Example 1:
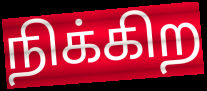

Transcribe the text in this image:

நிக்கிற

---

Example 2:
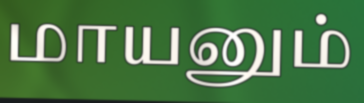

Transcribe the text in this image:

மாயனும்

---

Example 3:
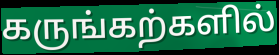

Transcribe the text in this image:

கருங்கற்களில்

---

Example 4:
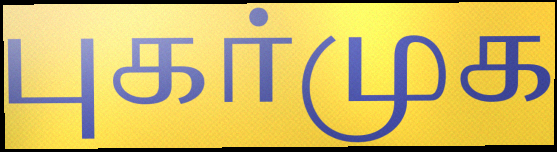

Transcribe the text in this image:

புகர்முக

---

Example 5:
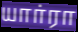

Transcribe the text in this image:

யார்ரா